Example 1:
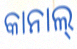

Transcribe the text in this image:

କାନାଲ୍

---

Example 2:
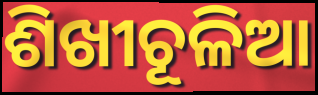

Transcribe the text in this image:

ଶିଖୀଚୂଳିଆ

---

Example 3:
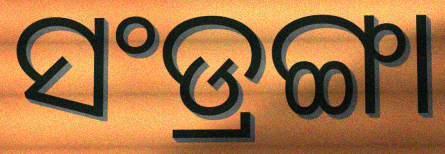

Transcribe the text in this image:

ସଂଡ୍ରଙ୍ଗା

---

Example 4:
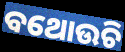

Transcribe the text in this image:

ବଥୋଉଚି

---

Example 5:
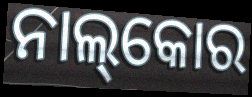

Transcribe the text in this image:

ନାଲ୍‌କୋର